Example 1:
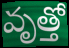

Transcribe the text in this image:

వృత్తో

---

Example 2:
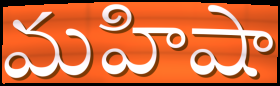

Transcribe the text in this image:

మహిషా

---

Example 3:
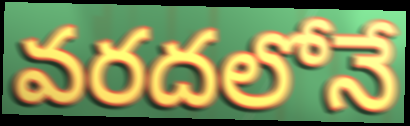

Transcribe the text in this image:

వరదలోనే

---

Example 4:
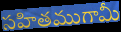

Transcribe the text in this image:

సహితముగామీ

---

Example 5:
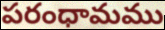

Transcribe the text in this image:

పరంధామము